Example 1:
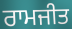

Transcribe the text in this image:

ਰਾਮਜੀਤ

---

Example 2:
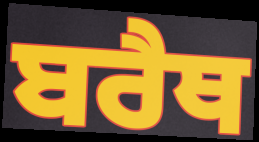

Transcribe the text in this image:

ਬਰੈਥ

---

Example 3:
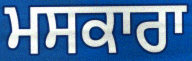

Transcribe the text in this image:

ਮਸਕਾਰਾ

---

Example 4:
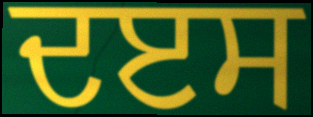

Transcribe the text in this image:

ਦੲਸ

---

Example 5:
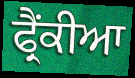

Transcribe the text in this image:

ਫ੍ਰੈਂਕੀਆ